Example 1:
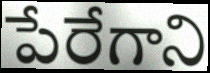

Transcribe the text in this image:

పేరేగాని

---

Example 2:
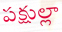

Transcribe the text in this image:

పక్షుల్లా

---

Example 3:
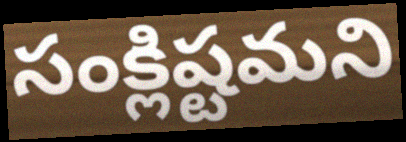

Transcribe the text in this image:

సంక్లిష్టమని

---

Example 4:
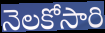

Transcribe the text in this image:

నెలకోసారి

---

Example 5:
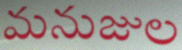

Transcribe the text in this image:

మనుజుల